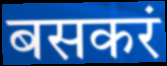
बसकरं